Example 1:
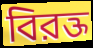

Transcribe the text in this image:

বিরক্ত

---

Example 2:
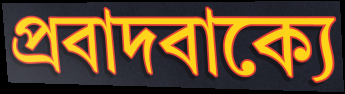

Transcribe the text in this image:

প্রবাদবাক্যে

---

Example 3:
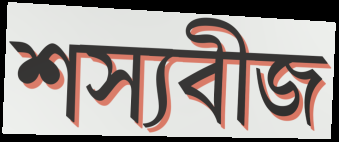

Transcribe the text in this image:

শস্যবীজ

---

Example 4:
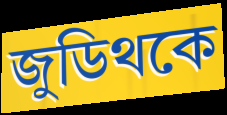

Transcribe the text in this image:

জুডিথকে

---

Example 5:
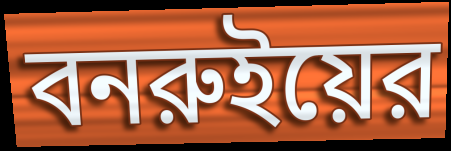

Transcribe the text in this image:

বনরুইয়ের